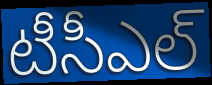
టీసీఎల్